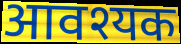
आवश्यक